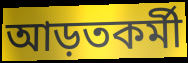
আড়তকর্মী